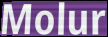
Molur